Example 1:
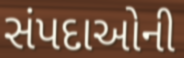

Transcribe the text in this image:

સંપદાઓની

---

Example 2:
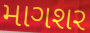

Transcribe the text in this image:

માગશર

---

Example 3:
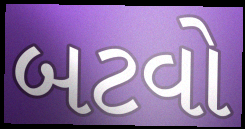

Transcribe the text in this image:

બટવો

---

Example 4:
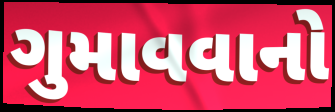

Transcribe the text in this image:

ગુમાવવાનો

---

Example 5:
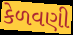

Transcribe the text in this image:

કેળવણી